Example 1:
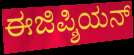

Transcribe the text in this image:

ಈಜಿಪ್ಶಿಯನ್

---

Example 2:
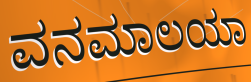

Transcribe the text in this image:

ವನಮಾಲಯಾ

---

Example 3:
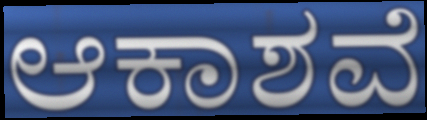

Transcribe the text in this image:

ಆಕಾಶವೆ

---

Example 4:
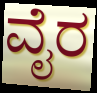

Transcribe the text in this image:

ವೈರ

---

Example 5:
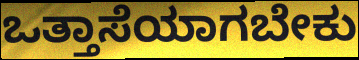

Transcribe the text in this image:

ಒತ್ತಾಸೆಯಾಗಬೇಕು